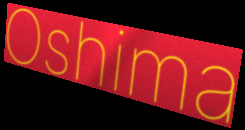
Oshima